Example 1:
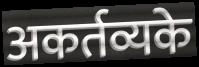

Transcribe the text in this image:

अकर्तव्यके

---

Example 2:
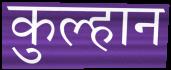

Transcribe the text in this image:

कुल्हान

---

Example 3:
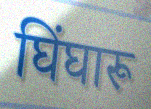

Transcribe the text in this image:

घिंघारू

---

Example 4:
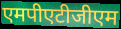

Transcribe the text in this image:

एमपीएटीजीएम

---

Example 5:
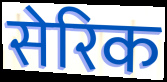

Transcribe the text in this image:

सेरिक